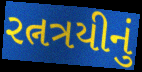
રત્નત્રયીનું